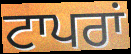
ਟਾਪਰਾਂ